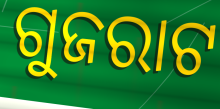
ଗୁଜରାଟ